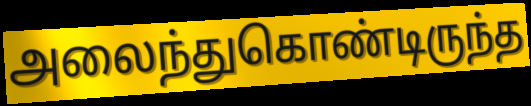
அலைந்துகொண்டிருந்த